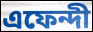
এফেন্দী